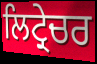
ਲਿਟ੍ਰੇਚਰ